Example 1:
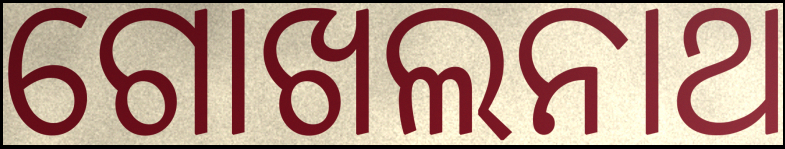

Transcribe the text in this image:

ଗୋଖଲନାଥ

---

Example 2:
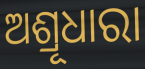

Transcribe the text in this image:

ଅଶ୍ରୂଧାରା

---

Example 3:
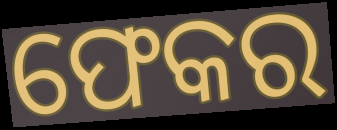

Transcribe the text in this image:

ଫେକର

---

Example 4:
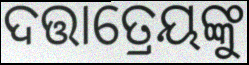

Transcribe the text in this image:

ଦତ୍ତାତ୍ରେୟଙ୍କୁ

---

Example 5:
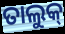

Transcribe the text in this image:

ତାଲୁକ୍